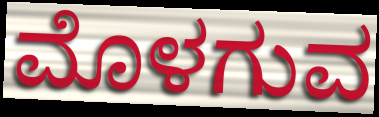
ಮೊಳಗುವ